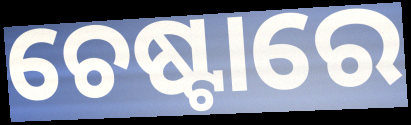
ଚେଷ୍ଟାରେ